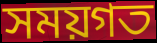
সময়গত